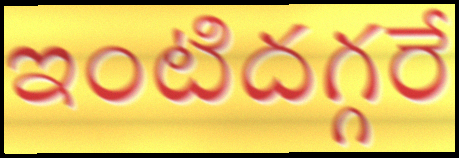
ఇంటిదగ్గరే